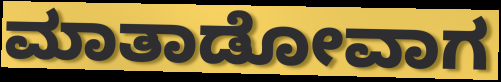
ಮಾತಾಡೋವಾಗ